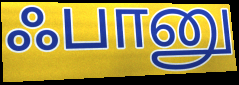
ஃபானு